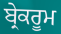
ਬ੍ਰੇਕਰੂਮ